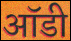
ऑडी